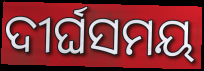
ଦୀର୍ଘସମୟ